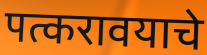
पत्करावयाचे